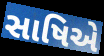
સાષિએ